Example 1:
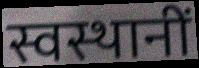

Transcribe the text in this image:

स्वस्थानीं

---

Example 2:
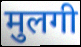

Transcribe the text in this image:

मुलगी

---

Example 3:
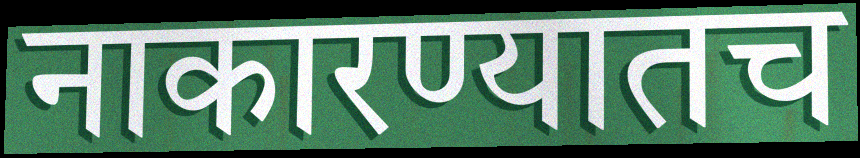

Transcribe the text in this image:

नाकारण्यातच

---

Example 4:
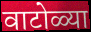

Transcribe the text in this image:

वाटोळ्या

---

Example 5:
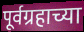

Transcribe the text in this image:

पूर्वग्रहाच्या